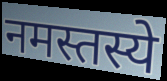
नमस्तस्ये